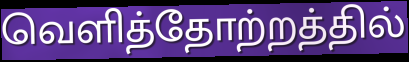
வெளித்தோற்றத்தில்